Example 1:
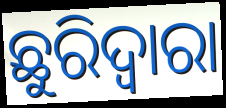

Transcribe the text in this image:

ଛୁରିଦ୍ୱାରା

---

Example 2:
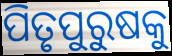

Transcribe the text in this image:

ପିତୃପୁରୁଷକୁ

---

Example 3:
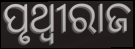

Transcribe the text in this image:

ପୃଥ୍ବୀରାଜ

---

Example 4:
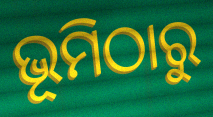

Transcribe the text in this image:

ଭୂମିଠାରୁ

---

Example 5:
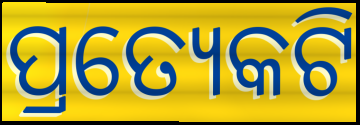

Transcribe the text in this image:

ପ୍ରତ୍ୟେକଟି